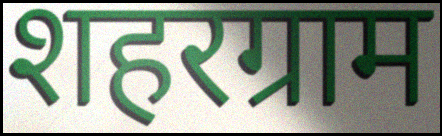
शहरग्राम